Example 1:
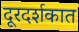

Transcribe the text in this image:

दूरदर्शकात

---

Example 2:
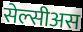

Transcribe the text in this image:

सेल्सीअस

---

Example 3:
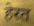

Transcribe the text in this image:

हेरत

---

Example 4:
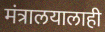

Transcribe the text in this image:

मंत्रालयालाही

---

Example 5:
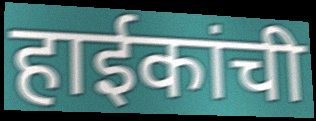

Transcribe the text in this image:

हाईकांची